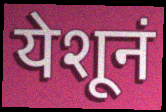
येशूनं